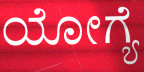
ಯೋಗ್ಯೆ